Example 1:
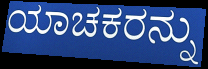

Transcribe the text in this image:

ಯಾಚಕರನ್ನು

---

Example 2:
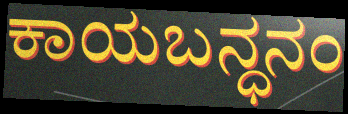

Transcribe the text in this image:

ಕಾಯಬನ್ಧನಂ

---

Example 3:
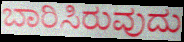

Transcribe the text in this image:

ಬಾರಿಸಿರುವುದು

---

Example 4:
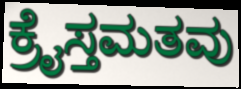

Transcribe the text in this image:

ಕ್ರೈಸ್ತಮತವು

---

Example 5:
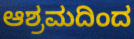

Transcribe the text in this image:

ಆಶ್ರಮದಿಂದ